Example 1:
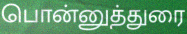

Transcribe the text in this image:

பொன்னுத்துரை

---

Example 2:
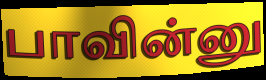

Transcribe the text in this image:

பாவின்னு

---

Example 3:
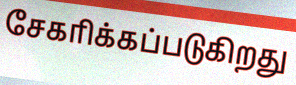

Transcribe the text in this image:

சேகரிக்கப்படுகிறது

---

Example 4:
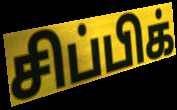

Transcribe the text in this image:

சிப்பிக்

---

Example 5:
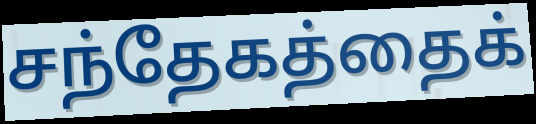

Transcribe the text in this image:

சந்தேகத்தைக்